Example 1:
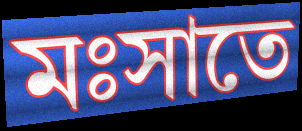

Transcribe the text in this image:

মঃসাতে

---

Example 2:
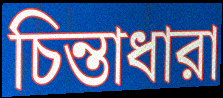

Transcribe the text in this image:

চিন্তাধারা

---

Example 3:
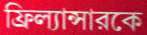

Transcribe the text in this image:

ফ্রিল্যান্সারকে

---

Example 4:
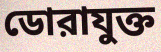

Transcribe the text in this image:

ডোরাযুক্ত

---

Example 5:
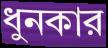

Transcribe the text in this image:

ধুনকার